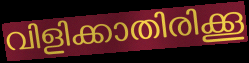
വിളിക്കാതിരിക്കൂ